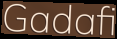
Gadafi